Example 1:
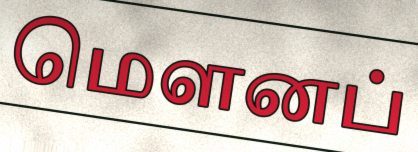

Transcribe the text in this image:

மெளனப்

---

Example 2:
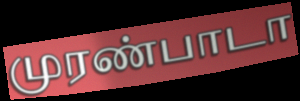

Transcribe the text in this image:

முரண்பாடா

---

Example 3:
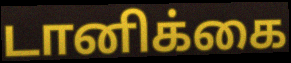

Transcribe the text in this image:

டானிக்கை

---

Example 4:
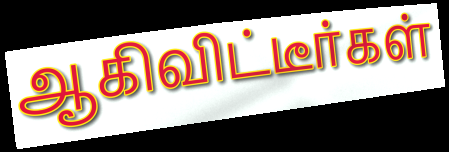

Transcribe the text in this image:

ஆகிவிட்டீர்கள்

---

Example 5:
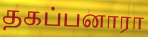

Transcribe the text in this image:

தகப்பனாரா